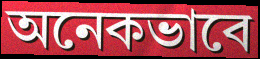
অনেকভাবে